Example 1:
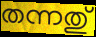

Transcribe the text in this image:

തന്നതു്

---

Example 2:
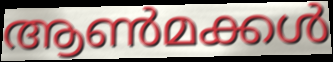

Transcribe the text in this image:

ആൺമക്കൾ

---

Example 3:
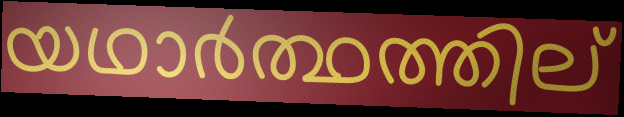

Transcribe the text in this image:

യഥാർത്ഥത്തില്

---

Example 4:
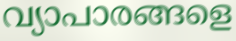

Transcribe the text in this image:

വ്യാപാരങ്ങളെ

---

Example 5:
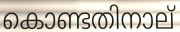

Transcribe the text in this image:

കൊണ്ടതിനാല്